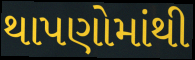
થાપણોમાંથી